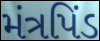
મંત્રપિંડ